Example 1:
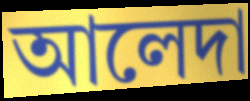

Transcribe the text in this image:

আলেদা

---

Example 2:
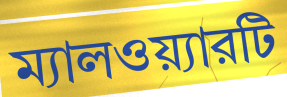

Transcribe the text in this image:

ম্যালওয়্যারটি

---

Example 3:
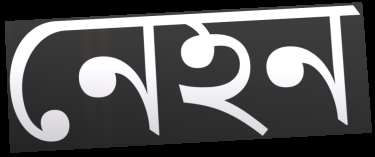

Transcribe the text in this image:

নেহন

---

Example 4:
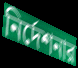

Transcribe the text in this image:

নির্দেশনার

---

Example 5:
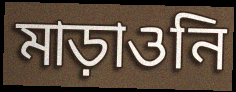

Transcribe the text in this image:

মাড়াওনি